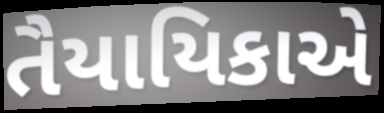
તૈયાયિકાએ